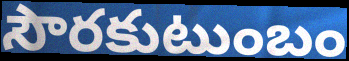
సౌరకుటుంబం